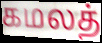
கமலத்